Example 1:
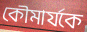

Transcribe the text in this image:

কৌমার্যকে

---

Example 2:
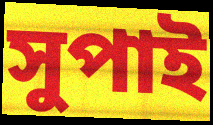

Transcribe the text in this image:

সুপাই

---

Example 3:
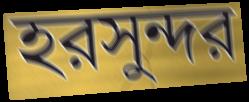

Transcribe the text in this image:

হরসুন্দর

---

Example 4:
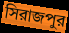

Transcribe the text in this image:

সিরাজপুর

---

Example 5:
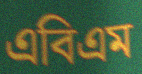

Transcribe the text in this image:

এবিএম